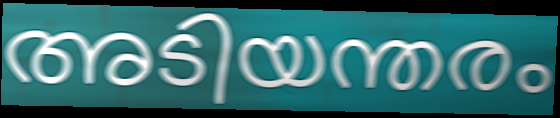
അടിയന്തരം